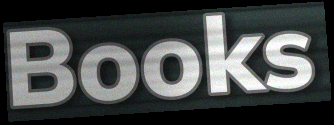
Books